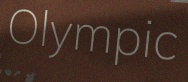
Olympic